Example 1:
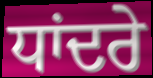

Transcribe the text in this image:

ਧਾਂਦਰੇ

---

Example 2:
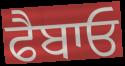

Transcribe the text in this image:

ਫੈਬਾਓ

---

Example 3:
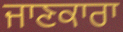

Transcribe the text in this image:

ਜਾਣਕਾਰਾ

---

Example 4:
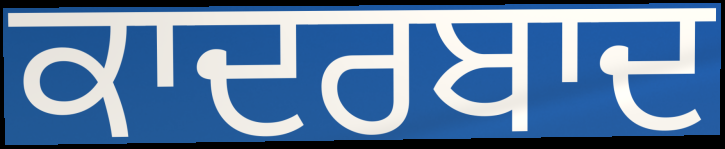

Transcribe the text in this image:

ਕਾਦਰਬਾਦ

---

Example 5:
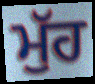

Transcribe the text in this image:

ਮੁੱਹ